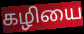
கழியை